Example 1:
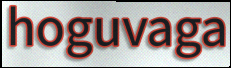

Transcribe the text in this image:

hoguvaga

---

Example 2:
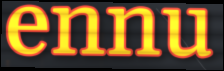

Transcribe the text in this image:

ennu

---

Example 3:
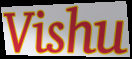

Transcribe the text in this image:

Vishu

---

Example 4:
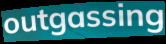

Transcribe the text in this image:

outgassing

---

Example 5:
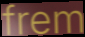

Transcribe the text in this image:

frem